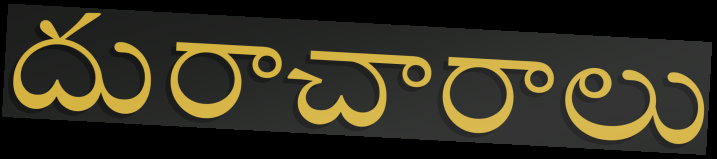
దురాచారాలు